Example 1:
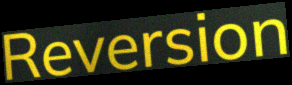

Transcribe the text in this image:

Reversion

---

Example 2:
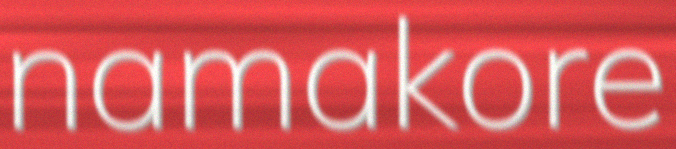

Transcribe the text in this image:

namakore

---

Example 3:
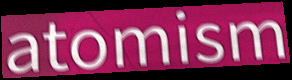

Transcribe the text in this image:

atomism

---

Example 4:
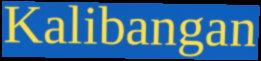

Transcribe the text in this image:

Kalibangan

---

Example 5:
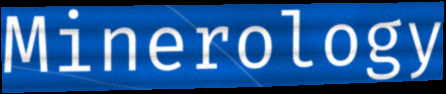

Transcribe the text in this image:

Minerology